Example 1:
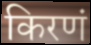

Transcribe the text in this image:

किरणं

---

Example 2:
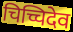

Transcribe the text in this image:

चिच्चिदेव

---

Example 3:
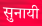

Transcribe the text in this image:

सुनायी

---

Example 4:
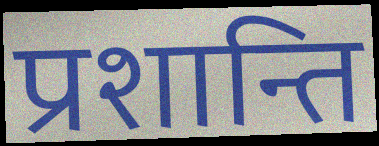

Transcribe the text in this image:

प्रशान्ति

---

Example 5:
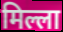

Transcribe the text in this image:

मिल्ला